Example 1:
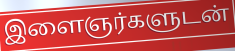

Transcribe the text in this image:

இளைஞர்களுடன்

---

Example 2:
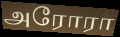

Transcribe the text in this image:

அரோரா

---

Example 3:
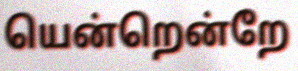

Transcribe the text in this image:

யென்றென்றே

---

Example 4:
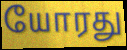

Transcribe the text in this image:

யோரது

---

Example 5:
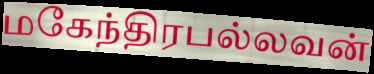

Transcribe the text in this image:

மகேந்திரபல்லவன்